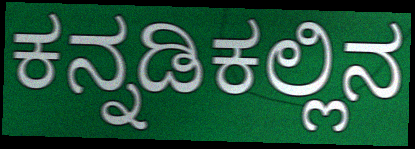
ಕನ್ನಡಿಕಲ್ಲಿನ